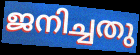
ജനിച്ചതു